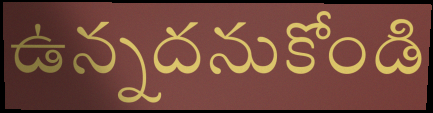
ఉన్నదనుకోండి